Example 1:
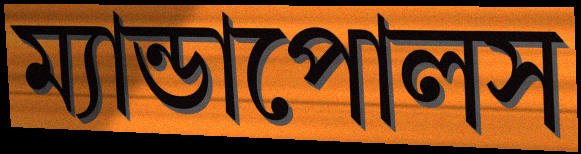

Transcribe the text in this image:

ম্যান্ডাপোলস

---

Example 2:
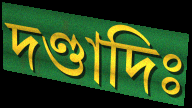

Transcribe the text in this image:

দণ্ডাদিঃ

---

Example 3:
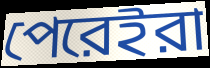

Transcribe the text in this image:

পেরেইরা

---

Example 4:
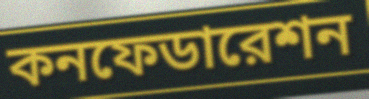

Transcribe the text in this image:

কনফেডারেশন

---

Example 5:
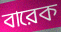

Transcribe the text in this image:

বারেক